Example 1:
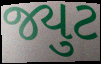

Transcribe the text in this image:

જ્યુટ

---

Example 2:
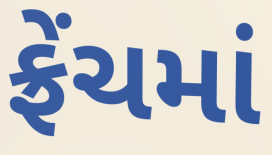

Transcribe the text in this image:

ફ્રેંચમાં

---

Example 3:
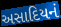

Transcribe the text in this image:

અસાદિયનં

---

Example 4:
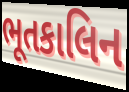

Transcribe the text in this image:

ભૂતકાલિન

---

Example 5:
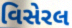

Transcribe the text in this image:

વિસેરલ